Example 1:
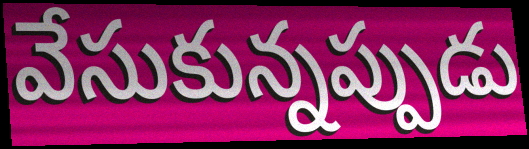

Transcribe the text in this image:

వేసుకున్నప్పుడు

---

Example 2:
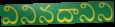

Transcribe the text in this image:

వినినదానిని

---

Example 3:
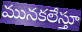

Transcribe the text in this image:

మునకలేస్తూ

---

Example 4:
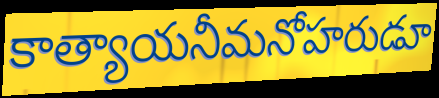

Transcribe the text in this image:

కాత్యాయనీమనోహరుడూ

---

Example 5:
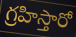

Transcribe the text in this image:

గ్రహిస్తారో